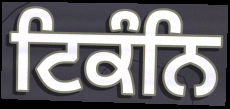
ਟਿਕੰਨਿ